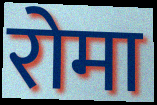
रोमा